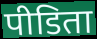
पीडिता